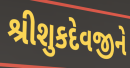
શ્રીશુકદેવજીને